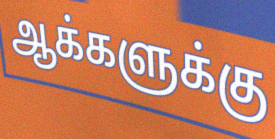
ஆக்களுக்கு